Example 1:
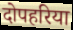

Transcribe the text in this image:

दोपहरिया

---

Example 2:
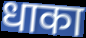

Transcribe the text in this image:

धाका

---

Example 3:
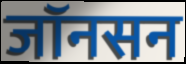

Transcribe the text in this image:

जॉनसन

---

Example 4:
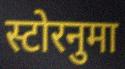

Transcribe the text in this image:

स्टोरनुमा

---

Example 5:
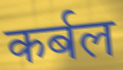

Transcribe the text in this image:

कर्बल